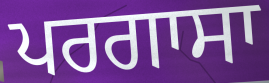
ਪਰਗਾਸਾ